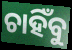
ଚାହିଁବୁ